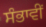
ਸੰਭਾਵੀਂ